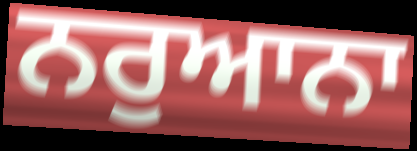
ਨਰੁਆਨਾ